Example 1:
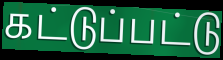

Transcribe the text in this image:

கட்டுப்பட்டு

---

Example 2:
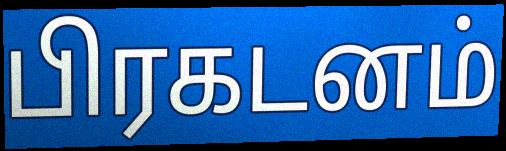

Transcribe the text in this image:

பிரகடனம்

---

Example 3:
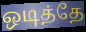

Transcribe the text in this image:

ஒடித்தே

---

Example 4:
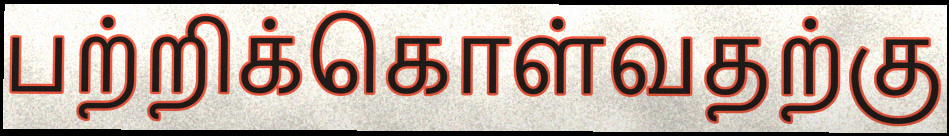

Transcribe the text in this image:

பற்றிக்கொள்வதற்கு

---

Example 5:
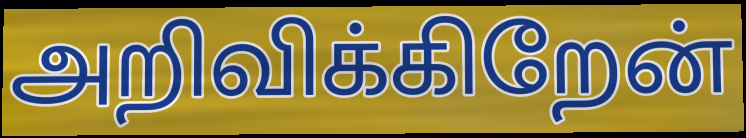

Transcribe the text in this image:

அறிவிக்கிறேன்